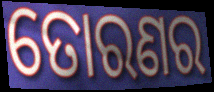
ତୋରଣର